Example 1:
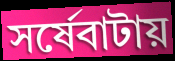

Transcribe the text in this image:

সর্ষেবাটায়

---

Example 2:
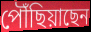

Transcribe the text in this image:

পৌঁছিয়াছেন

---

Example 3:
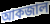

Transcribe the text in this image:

আকজাল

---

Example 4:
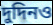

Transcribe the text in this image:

দুদিনও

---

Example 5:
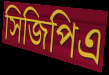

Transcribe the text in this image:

সিজিপিএ